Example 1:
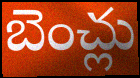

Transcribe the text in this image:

బెంచ్లు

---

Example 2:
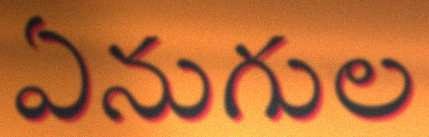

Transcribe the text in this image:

ఏనుగుల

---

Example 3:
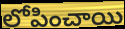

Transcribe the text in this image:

లోపించాయి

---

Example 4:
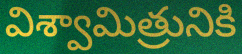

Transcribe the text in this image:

విశ్వామిత్రునికి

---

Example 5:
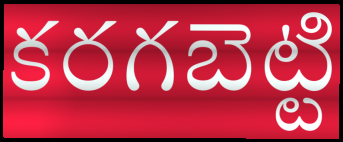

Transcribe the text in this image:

కరగబెట్టి